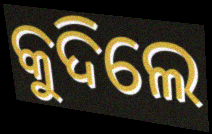
କୁଦିଲେ